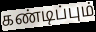
கண்டிப்பும்